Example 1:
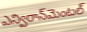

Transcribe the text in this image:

ఎన్విరాన్‌మెంటల్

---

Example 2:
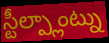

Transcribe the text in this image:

స్టీల్ప్లాంట్ను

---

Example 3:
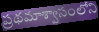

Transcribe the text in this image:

ప్రథమాశ్వాసంలోని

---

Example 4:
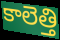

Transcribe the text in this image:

కాలెత్తి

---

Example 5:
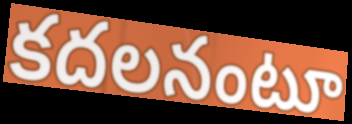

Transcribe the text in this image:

కదలనంటూ